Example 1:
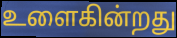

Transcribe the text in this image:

உளைகின்றது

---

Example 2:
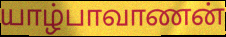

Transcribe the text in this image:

யாழ்பாவாணன்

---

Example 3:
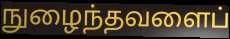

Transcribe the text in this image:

நுழைந்தவளைப்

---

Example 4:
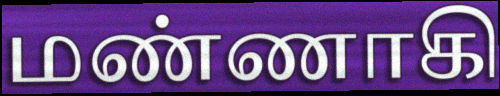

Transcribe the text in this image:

மண்ணாகி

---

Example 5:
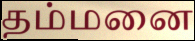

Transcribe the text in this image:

தம்மனை